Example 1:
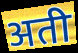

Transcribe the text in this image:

अती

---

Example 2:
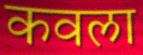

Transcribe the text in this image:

कवला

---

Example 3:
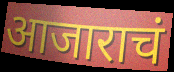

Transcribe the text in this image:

आजाराचं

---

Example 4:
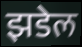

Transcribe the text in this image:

झडेल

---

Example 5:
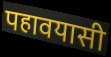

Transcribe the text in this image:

पहावयासी